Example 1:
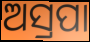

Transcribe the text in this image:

ଅସ୍ରପା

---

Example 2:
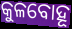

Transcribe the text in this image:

କୁଳବୋହୂ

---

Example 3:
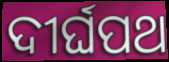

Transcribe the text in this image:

ଦୀର୍ଘପଥ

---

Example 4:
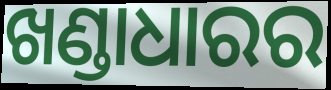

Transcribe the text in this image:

ଖଣ୍ଡାଧାରର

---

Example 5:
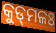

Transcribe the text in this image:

କୁଡ୍‌ମଳଃ